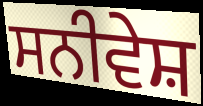
ਸਨੀਵੇਸ਼